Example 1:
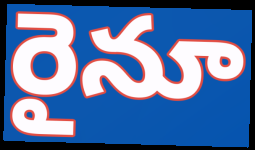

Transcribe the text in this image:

రైనూ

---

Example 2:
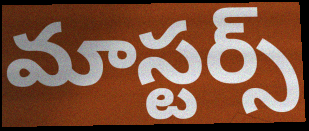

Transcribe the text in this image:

మాస్టర్స్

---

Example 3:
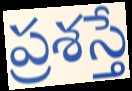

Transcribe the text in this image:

ప్రశస్తే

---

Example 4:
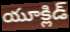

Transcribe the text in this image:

యూక్లిడ్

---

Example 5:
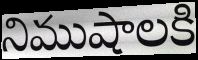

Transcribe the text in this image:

నిముషాలకి